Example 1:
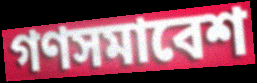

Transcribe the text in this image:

গণসমাবেশ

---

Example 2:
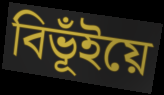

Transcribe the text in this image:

বিভূঁইয়ে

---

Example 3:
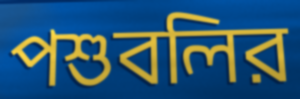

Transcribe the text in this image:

পশুবলির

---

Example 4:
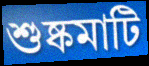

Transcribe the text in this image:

শুষ্কমাটি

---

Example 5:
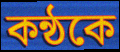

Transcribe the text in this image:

কন্ঠকে